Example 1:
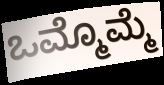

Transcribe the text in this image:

ಒಮ್ಮೊಮ್ಮೆ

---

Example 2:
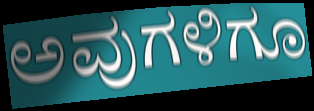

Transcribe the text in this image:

ಅವುಗಳಿಗೂ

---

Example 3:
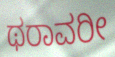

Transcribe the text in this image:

ಥರಾವರೀ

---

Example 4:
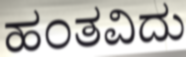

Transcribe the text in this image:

ಹಂತವಿದು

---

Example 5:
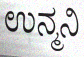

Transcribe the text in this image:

ಉನ್ಮನಿ